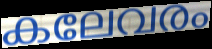
കലേവരം